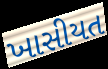
ખાસીયત